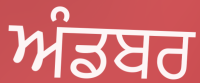
ਅੰਡਬਰ